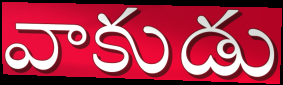
వాకుడు